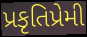
પ્રકૃતિપ્રેમી